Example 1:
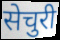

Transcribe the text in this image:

सेचुरी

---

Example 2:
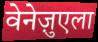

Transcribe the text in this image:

वेनेज़ुएला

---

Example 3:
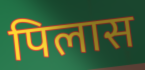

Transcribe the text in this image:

पिलास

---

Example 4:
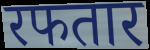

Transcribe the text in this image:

रफतार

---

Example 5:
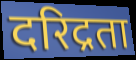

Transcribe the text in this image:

दरिद्रता